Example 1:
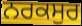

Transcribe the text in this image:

ਨਰਕਸੁਰ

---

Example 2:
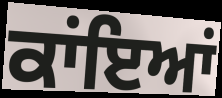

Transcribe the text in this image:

ਕਾਂਇਆਂ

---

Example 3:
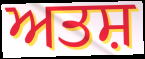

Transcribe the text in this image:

ਅਤਸ਼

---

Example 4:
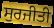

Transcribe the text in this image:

ਸੁਰਜੀਤੀ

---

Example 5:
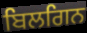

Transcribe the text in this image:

ਬਿਲਗਿਨ